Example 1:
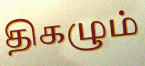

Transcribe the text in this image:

திகழும்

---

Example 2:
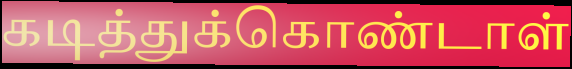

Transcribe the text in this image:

கடித்துக்கொண்டாள்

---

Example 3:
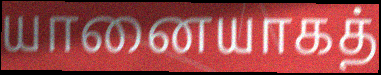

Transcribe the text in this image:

யானையாகத்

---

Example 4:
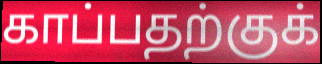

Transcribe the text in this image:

காப்பதற்குக்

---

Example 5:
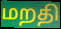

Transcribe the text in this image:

மறதி